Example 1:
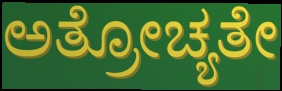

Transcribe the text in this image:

ಅತ್ರೋಚ್ಯತೇ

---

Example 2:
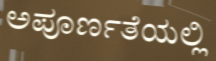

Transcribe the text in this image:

ಅಪೂರ್ಣತೆಯಲ್ಲಿ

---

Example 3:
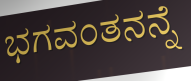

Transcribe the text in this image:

ಭಗವಂತನನ್ನೆ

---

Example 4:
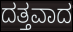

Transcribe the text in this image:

ದತ್ತವಾದ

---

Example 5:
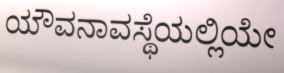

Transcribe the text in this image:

ಯೌವನಾವಸ್ಥೆಯಲ್ಲಿಯೇ